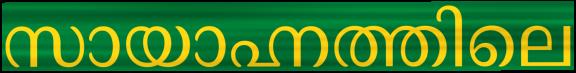
സായാഹ്നത്തിലെ